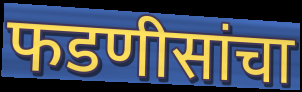
फडणीसांचा